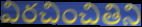
విరచించితిని